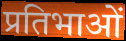
प्रतिभाओं